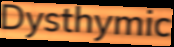
Dysthymic